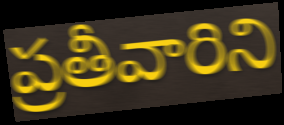
ప్రతీవారిని